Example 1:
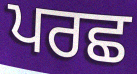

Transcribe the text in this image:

ਪਰਛ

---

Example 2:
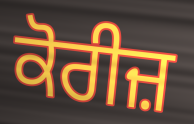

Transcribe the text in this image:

ਕੋਰੀਜ਼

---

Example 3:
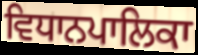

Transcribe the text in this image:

ਵਿਧਾਨਪਾਲਿਕਾ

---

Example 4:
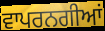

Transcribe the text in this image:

ਵਾਪਰਨਗੀਆਂ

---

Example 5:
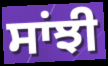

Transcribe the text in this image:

ਸਾਂਝੀ